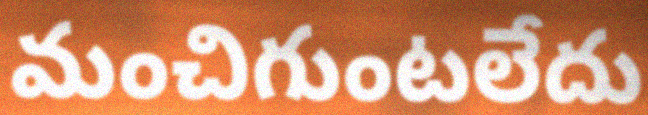
మంచిగుంటలేదు